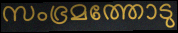
സംഭ്രമത്തോടു